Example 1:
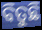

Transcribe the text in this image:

ବିତୁଛି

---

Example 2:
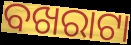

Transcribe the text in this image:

ବଖରାଟା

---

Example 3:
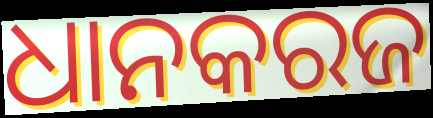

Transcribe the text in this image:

ଧାନକରଜ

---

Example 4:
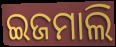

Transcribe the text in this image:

ଇଜମାଲି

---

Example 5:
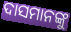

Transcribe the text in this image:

ଦାସମାନଙ୍କୁ